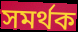
সমর্থক